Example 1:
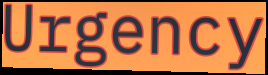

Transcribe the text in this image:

Urgency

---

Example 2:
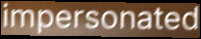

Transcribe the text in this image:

impersonated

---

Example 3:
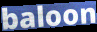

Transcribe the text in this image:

baloon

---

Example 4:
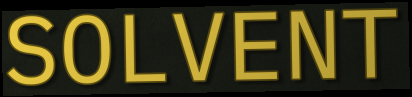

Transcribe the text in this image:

SOLVENT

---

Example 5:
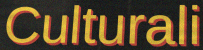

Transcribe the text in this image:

Culturali